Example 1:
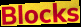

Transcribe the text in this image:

Blocks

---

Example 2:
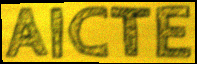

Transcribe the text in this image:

AICTE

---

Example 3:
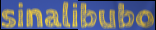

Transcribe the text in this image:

sinalibubo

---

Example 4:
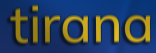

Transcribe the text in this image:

tirana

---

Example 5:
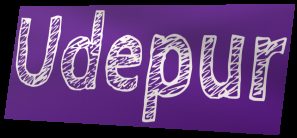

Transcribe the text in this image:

Udepur